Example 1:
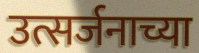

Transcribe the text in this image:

उत्सर्जनाच्या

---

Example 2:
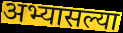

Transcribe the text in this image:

अभ्यासल्या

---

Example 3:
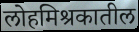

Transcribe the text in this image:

लोहमिश्रकातील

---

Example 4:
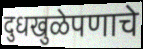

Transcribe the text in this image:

दुधखुळेपणाचे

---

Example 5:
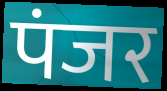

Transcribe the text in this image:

पंजर